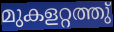
മുകളറ്റത്തു്